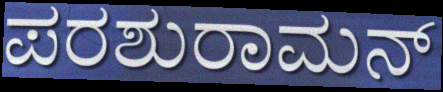
ಪರಶುರಾಮನ್